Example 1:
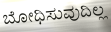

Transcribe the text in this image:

ಬೋಧಿಸುವುದಿಲ್ಲ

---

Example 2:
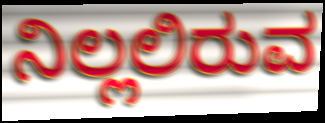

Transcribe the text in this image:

ನಿಲ್ಲಲಿರುವ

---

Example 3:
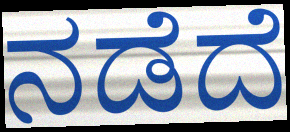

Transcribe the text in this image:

ನಡೆದೆ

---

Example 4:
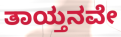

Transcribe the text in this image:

ತಾಯ್ತನವೇ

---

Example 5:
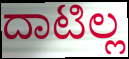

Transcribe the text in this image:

ದಾಟಿಲ್ಲ